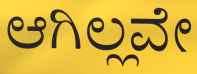
ಆಗಿಲ್ಲವೇ